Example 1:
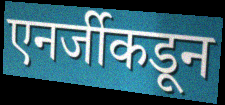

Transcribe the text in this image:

एनर्जीकडून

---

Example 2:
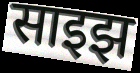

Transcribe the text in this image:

साइझ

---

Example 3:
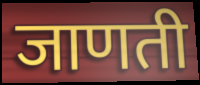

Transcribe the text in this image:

जाणती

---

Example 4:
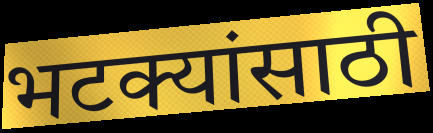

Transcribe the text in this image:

भटक्यांसाठी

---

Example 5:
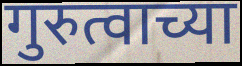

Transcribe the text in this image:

गुरुत्वाच्या